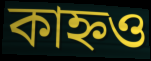
কাহ্নও